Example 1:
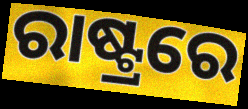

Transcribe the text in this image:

ରାଷ୍ଟ୍ରରେ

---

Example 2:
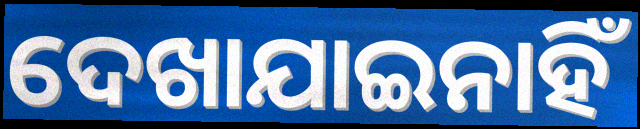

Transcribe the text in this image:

ଦେଖାଯାଇନାହିଁ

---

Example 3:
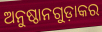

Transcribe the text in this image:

ଅନୁଷ୍ଠାନଗୁଡ଼ାକର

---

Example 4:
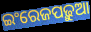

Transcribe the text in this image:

ଇଂରେଜପଢ଼ୁଆ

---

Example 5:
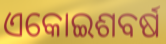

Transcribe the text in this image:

ଏକୋଇଶବର୍ଷ